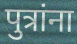
पुत्रांना